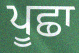
ਪੂਛਾ